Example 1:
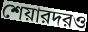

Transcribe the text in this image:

শেয়ারদরও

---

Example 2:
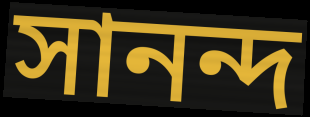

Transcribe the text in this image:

সানন্দ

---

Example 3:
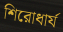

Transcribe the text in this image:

শিরোধার্য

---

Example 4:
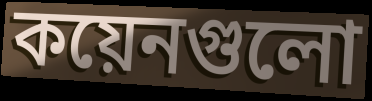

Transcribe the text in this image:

কয়েনগুলো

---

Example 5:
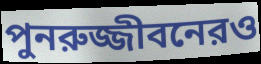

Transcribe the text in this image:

পুনরুজ্জীবনেরও